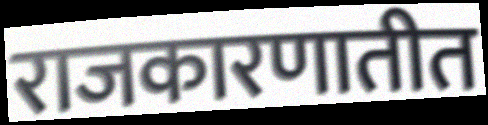
राजकारणातीत